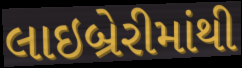
લાઇબ્રેરીમાંથી